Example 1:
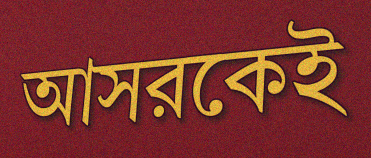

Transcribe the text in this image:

আসরকেই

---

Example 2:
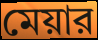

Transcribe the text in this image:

মেয়ার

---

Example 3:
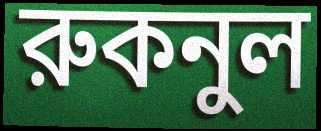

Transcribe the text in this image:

রুকনুল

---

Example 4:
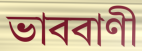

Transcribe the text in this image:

ভাববাণী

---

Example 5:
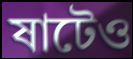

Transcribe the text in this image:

ষাটেও